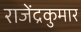
राजेंद्रकुमार